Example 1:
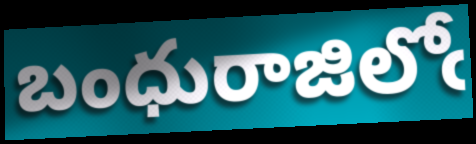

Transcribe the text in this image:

బంధురాజిలోఁ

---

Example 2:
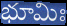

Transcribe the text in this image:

భూమిః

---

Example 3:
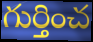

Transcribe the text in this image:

గుర్తించ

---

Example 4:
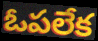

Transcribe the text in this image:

ఓపలేక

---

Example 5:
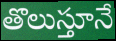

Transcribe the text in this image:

తొలుస్తూనే